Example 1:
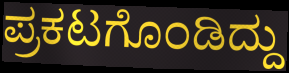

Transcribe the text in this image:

ಪ್ರಕಟಗೊಂಡಿದ್ದು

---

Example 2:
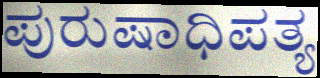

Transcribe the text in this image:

ಪುರುಷಾಧಿಪತ್ಯ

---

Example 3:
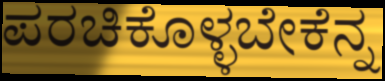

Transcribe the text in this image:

ಪರಚಿಕೊಳ್ಳಬೇಕೆನ್ನ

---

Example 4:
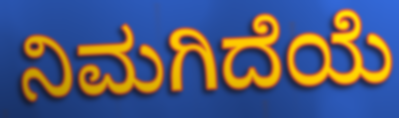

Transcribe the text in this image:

ನಿಮಗಿದೆಯೆ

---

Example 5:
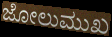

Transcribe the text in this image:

ಜೋಲುಮುಖ